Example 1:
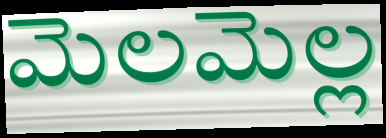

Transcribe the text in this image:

మెలమెల్ల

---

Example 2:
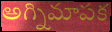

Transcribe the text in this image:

అగ్నిమాపక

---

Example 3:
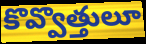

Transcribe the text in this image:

కొవ్వొత్తులూ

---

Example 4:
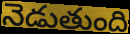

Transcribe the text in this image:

నెడుతుంది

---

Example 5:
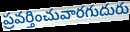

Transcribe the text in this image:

ప్రవర్తించువారగుదురు